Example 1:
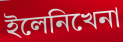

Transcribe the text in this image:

ইলেনিখেনা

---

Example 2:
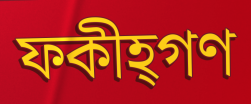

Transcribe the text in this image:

ফকীহ্গণ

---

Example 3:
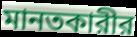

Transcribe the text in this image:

মানতকারীর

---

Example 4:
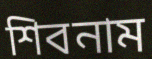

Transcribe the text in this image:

শিবনাম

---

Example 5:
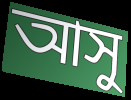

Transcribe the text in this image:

আসু